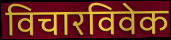
विचारविवेक